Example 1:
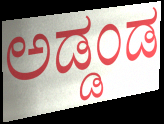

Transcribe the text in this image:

ಅಡ್ಡಂಡ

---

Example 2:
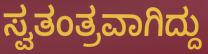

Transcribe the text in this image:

ಸ್ವತಂತ್ರವಾಗಿದ್ದು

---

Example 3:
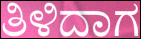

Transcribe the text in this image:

ತಿಳಿದಾಗ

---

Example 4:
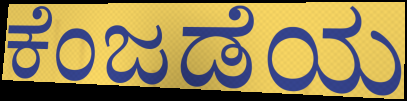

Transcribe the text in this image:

ಕೆಂಜಡೆಯ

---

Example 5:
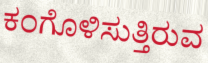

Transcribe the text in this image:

ಕಂಗೊಳಿಸುತ್ತಿರುವ